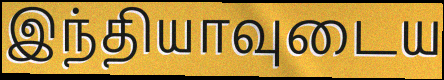
இந்தியாவுடைய